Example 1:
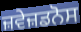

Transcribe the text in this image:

ਜ਼ਵੇਜ਼ਡਨੋਸ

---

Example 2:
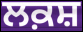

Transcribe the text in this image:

ਲਕ਼ਸ਼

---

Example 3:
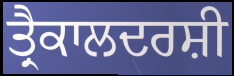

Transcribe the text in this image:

ਤ੍ਰੈਕਾਲਦਰਸ਼ੀ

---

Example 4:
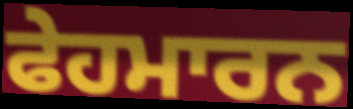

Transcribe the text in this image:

ਫੇਹਮਾਰਨ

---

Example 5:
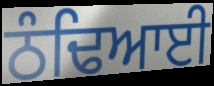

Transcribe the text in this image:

ਠੰਢਿਆਈ